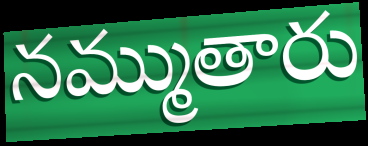
నమ్ముతారు